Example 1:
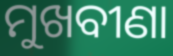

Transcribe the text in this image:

ମୁଖବୀଣା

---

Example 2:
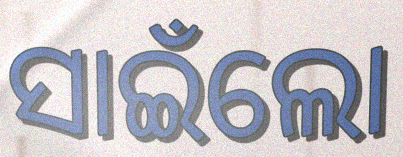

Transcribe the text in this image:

ସାଇଁଲୋ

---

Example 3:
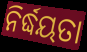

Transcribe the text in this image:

ନିର୍ଦ୍ଧୟତା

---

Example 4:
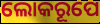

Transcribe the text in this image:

ଲୋକରୂପେ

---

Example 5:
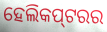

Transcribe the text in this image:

ହେଲିକପ୍‌ଟରର